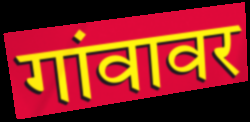
गांवावर